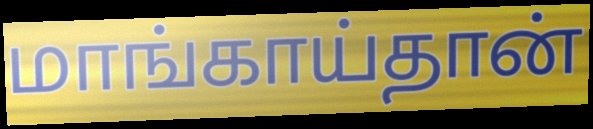
மாங்காய்தான்